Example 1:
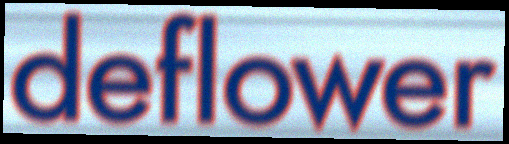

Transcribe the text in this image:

deflower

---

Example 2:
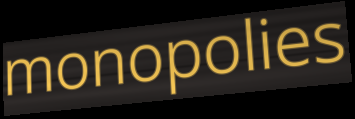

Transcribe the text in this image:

monopolies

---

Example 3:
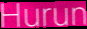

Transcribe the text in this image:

Hurun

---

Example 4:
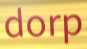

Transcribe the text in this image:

dorp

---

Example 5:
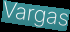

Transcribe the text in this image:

Vargas